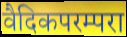
वैदिकपरम्परा